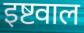
इष्टवाल